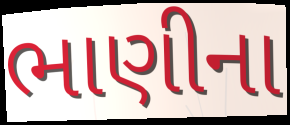
ભાણીના